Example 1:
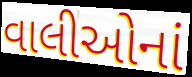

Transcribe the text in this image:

વાલીઓનાં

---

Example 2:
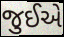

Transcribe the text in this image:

જુઈએ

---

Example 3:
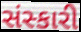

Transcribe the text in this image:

સંસ્કારી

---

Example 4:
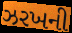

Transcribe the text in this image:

ઝરખની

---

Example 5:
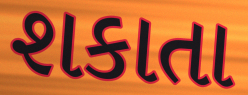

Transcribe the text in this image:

શકાતા